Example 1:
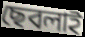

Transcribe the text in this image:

ছেবলাই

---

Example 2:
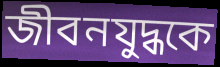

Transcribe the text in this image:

জীবনযুদ্ধকে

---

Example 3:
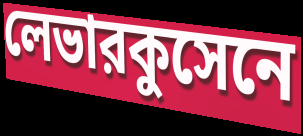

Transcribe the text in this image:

লেভারকুসেনে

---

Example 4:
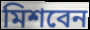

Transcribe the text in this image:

মিশবেন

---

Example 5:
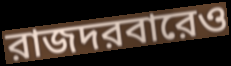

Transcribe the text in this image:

রাজদরবারেও